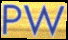
PW